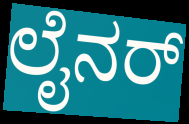
ಲೈನರ್